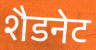
शैडनेट